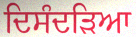
ਦਿਸੰਦੜਿਆ